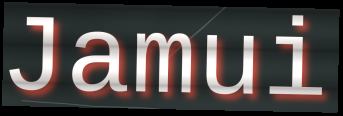
Jamui